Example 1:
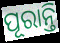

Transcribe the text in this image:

ପୂରାନ୍ତି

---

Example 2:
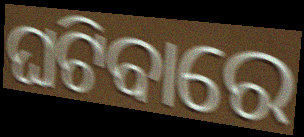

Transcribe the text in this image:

ଘଟିବାରେ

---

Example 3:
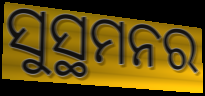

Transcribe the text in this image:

ସୁସ୍ଥମନର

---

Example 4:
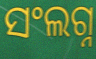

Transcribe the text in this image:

ସଂଲଗ୍ନ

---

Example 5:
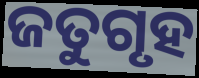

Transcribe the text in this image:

ଜତୁଗୃହ